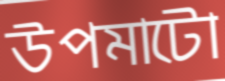
উপমাটো